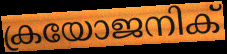
ക്രയോജനിക്